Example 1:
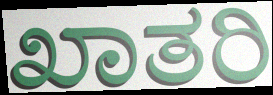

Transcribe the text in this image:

ಖಾತರಿ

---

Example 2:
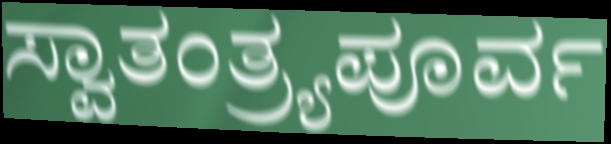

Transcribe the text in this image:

ಸ್ವಾತಂತ್ರ್ಯಪೂರ್ವ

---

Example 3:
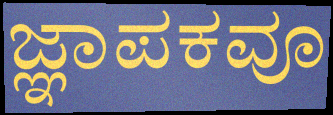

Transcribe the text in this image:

ಜ್ಞಾಪಕವೂ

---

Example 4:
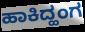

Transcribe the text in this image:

ಹಾಕಿದ್ಹಂಗ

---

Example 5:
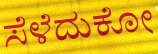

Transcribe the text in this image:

ಸೆಳೆದುಕೋ